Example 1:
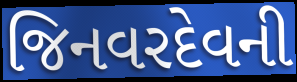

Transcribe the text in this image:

જિનવરદેવની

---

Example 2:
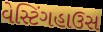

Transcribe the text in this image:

વેસ્ટિંગહાઉસ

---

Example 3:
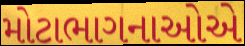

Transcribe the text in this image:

મોટાભાગનાઓએ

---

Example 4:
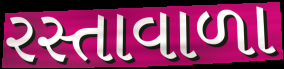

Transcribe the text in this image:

રસ્તાવાળા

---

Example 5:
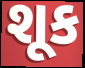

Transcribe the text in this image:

શૂક